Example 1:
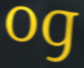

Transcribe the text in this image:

og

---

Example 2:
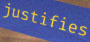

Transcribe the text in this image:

justifies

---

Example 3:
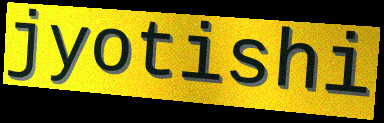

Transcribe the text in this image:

jyotishi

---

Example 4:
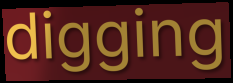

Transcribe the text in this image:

digging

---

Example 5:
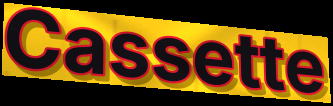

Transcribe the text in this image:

Cassette